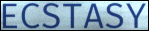
ECSTASY